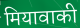
मियावाकी